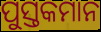
ପୁସ୍ତକମାନ